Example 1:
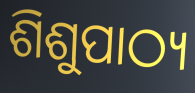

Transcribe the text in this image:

ଶିଶୁପାଠ୍ୟ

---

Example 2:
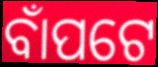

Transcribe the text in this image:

ବାଁପଟେ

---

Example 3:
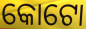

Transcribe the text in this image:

କୋଟୋ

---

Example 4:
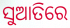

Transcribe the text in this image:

ସୁଆତିରେ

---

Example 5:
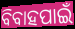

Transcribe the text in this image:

ବିବାହପାଇଁ